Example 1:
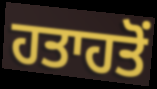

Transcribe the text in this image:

ਹਤਾਹਤੋਂ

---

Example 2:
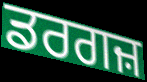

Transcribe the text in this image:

ਡਰਗਜ਼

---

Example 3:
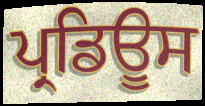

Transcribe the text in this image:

ਪ੍ਰਡਿਊਸ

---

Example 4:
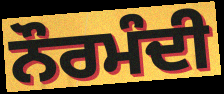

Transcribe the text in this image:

ਨੌਰਮੰਦੀ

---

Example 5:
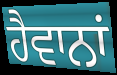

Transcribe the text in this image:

ਹੈਵਾਨਾਂ